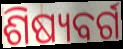
ଶିଷ୍ୟବର୍ଗ